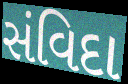
સંવિદા